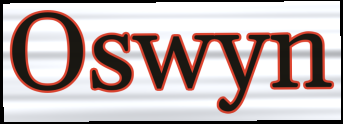
Oswyn